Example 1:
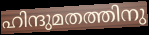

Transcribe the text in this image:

ഹിന്ദുമതത്തിനു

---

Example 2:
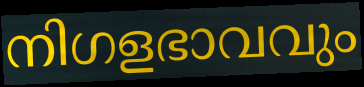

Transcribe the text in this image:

നിഗളഭാവവും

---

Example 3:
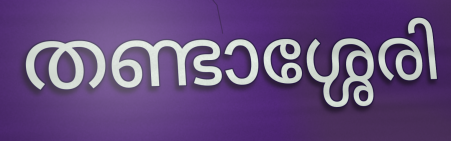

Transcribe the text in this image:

തണ്ടാശ്ശേരി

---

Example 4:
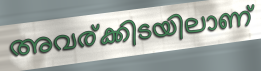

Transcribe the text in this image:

അവര്ക്കിടയിലാണ്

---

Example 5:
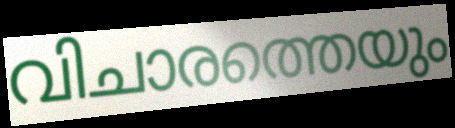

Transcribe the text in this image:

വിചാരത്തെയും